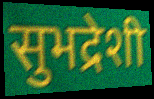
सुभद्रेशी